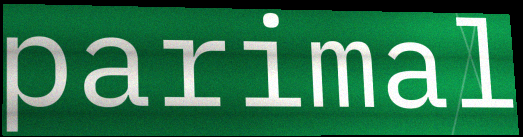
parimal